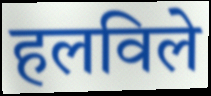
हलविले